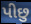
પીછુ